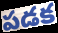
పడక